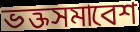
ভক্তসমাবেশ